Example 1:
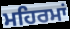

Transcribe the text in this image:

ਮਹਿਰਮਾਂ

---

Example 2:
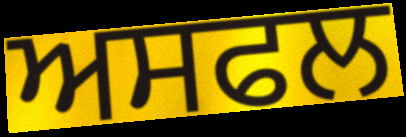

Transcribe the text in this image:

ਅਸਫਲ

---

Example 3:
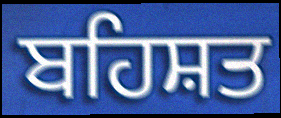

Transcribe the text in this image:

ਬਹਿਸ਼ਤ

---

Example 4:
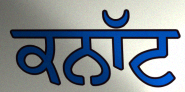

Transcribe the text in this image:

ਕਨਾੱਟ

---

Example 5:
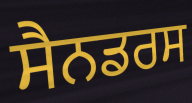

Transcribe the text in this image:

ਸੈਨਡਰਸ